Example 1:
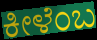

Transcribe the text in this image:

ಕೀಳೆಂಬ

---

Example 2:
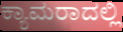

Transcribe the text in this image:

ಕ್ಯಾಮರಾದಲ್ಲಿ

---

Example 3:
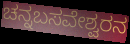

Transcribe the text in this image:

ಚನ್ನಬಸವೇಶ್ವರನ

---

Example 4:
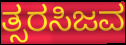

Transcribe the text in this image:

ತ್ಸರಸಿಜವ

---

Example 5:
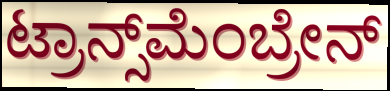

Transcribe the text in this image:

ಟ್ರಾನ್ಸ್‌ಮೆಂಬ್ರೇನ್